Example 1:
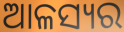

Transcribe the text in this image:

ଆଳସ୍ୟର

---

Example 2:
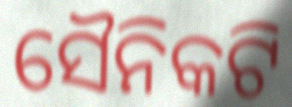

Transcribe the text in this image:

ସୈନିକଟି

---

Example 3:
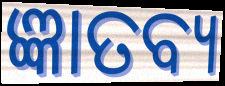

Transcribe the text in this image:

ଜ୍ଞାତବ୍ୟ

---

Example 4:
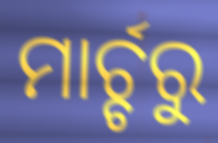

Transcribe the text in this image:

ମାର୍ଚ୍ଚରୁ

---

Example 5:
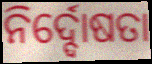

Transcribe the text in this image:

ନିର୍ଦ୍ଦୋଷତା